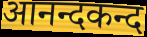
आनन्दकन्द